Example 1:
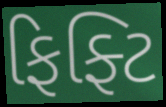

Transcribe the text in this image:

ફિફ્ટિ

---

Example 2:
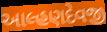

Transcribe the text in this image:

આલ્હણદેવજી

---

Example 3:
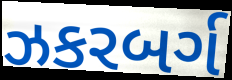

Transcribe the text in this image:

ઝકરબર્ગ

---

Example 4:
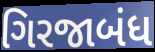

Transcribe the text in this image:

ગિરજાબંધ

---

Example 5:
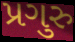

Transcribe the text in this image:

પ્રગુરુ